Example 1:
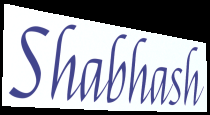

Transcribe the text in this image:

Shabhash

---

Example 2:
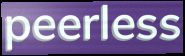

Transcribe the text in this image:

peerless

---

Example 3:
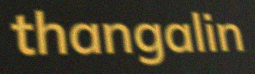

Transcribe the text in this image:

thangalin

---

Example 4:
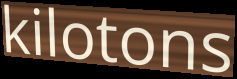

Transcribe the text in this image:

kilotons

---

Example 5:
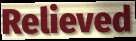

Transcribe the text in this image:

Relieved